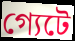
গ্যেটে